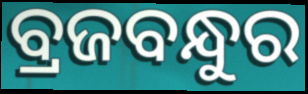
ବ୍ରଜବନ୍ଧୁର